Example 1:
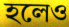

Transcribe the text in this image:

হলেও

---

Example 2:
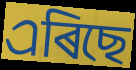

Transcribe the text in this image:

এৰিছে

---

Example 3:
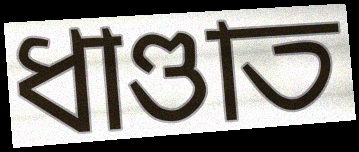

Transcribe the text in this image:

ধাণ্ডাত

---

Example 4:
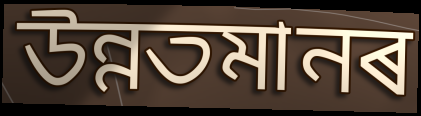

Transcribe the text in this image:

উন্নতমানৰ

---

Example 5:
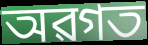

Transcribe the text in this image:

অৱগত